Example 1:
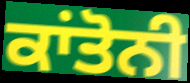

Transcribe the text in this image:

ਕਾਂਤੋਨੀ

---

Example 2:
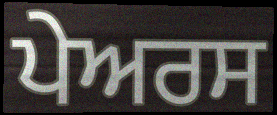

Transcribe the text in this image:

ਪੇਅਰਸ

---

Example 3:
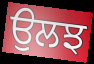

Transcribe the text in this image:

ਉਲਝ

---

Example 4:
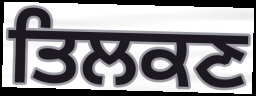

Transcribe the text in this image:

ਤਿਲਕਣ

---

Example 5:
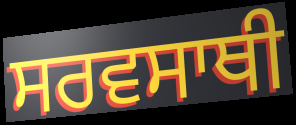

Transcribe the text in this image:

ਸਰਵਸਾਥੀ